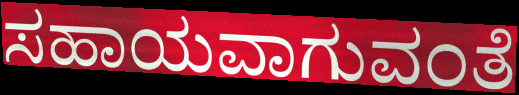
ಸಹಾಯವಾಗುವಂತೆ